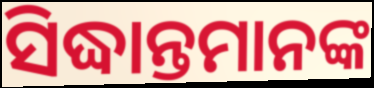
ସିଦ୍ଧାନ୍ତମାନଙ୍କ